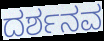
ದರ್ಶನವ